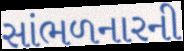
સાંભળનારની